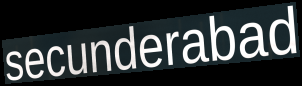
secunderabad